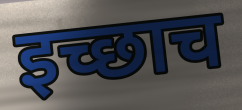
इच्छाच